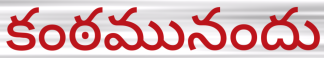
కంఠమునందు